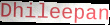
Dhileepan